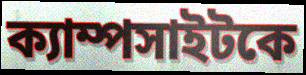
ক্যাম্পসাইটকে